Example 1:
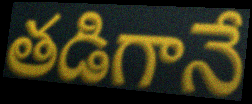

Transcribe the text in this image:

తడిగానే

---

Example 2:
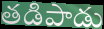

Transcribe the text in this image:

తడిపాడు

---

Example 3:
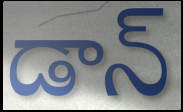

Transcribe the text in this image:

డాన్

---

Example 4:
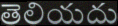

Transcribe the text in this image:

తెలియదు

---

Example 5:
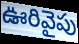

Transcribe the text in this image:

ఊరివైపు